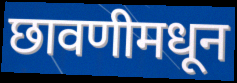
छावणीमधून